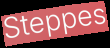
Steppes